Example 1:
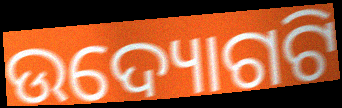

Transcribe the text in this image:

ଉଦ୍ୟୋଗଟି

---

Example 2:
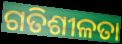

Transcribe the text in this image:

ଗତିଶୀଳତା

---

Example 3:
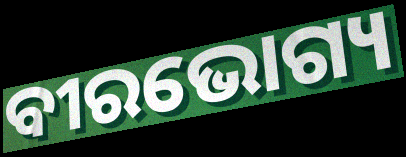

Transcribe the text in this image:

ବୀରଭୋଗ୍ୟ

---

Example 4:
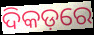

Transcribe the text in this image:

ଦିକଡ଼ରେ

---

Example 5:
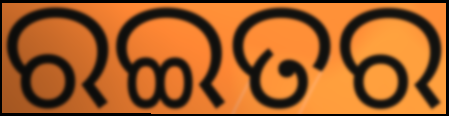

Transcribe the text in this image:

ରଇତର